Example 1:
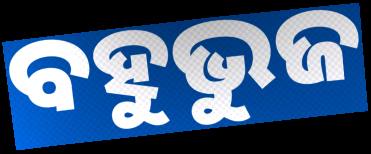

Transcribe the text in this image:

ବହୁଭୁଜ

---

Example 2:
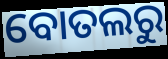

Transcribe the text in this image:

ବୋତଲରୁ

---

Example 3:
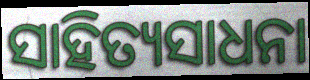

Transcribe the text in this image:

ସାହିତ୍ୟସାଧନା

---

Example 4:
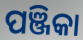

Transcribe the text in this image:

ପଞ୍ଜିକା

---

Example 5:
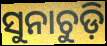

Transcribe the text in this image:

ସୁନାଚୁଡ଼ି